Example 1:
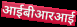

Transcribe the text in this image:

आईबीआरआई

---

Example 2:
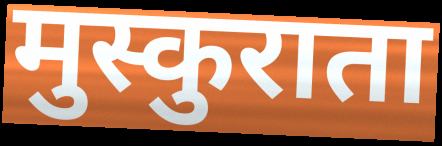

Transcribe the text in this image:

मुस्कुराता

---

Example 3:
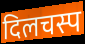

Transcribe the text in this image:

दिलचस्प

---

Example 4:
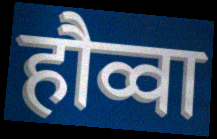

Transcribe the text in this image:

हौव्वा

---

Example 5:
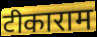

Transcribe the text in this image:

टीकाराम